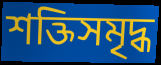
শক্তিসমৃদ্ধ